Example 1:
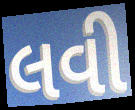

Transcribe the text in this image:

લવી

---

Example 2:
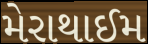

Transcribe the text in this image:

મેરાથાઈમ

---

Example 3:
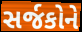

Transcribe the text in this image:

સર્જકોને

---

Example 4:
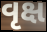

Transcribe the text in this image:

વૃક્ષ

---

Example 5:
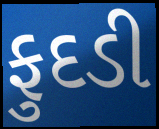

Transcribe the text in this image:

ફુદડી